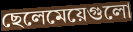
ছেলেমেয়েগুলো